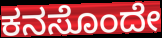
ಕನಸೊಂದೇ